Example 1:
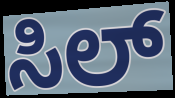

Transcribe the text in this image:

ಸಿಲ್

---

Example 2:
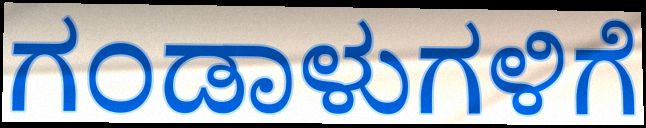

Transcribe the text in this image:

ಗಂಡಾಳುಗಳಿಗೆ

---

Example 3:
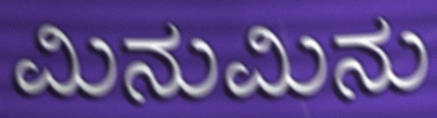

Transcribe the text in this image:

ಮಿನುಮಿನು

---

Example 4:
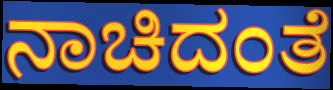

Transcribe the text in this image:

ನಾಚಿದಂತೆ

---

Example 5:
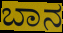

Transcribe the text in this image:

ಬಾನ